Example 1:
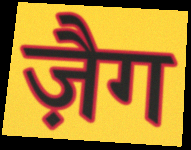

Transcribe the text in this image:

ज़ैग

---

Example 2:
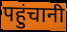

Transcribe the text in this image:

पहुंचानी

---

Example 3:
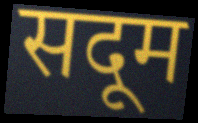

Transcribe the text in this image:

सदूम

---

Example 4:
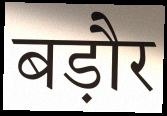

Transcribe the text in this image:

बड़ौर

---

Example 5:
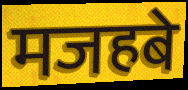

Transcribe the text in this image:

मजहबे